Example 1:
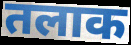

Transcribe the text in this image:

तलाक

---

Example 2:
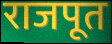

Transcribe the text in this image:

राजपूत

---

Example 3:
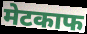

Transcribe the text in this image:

मेटकाफ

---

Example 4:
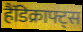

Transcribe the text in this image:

हैंडिक्राफ्ट्स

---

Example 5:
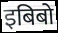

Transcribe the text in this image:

इबिबो